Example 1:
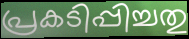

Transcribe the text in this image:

പ്രകടിപ്പിച്ചതു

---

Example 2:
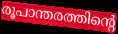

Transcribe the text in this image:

രൂപാന്തരത്തിന്റെ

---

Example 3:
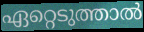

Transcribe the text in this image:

ഏറ്റെടുത്താൽ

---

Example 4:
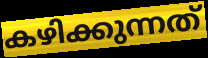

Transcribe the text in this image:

കഴിക്കുന്നത്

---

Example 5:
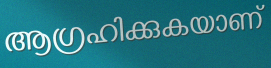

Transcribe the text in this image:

ആഗ്രഹിക്കുകയാണ്